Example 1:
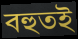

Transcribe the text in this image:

বহুতই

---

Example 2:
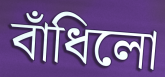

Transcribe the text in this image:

বাঁধিলো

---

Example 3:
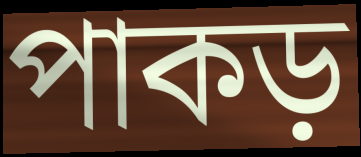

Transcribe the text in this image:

পাকড়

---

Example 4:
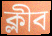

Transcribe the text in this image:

ক্লীব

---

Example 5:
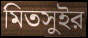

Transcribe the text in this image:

মিতসুইর